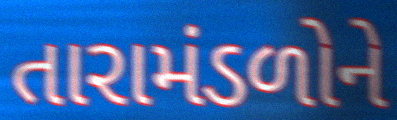
તારામંડળોને